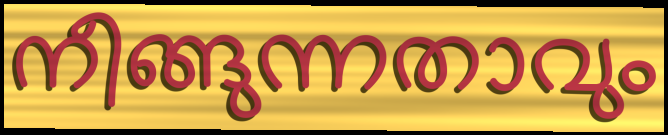
നീങ്ങുന്നതാവും